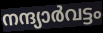
നന്ദ്യാർവട്ടം